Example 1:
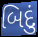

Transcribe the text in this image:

બિદું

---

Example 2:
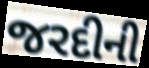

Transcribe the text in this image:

જરદીની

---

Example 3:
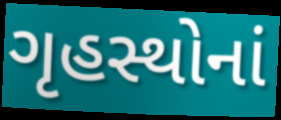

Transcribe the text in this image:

ગૃહસ્થોનાં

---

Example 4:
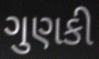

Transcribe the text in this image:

ગુણકી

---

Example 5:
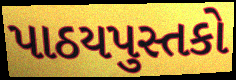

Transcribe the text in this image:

પાઠયપુસ્તકો